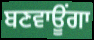
ਬਣਵਾਊਂਗਾ